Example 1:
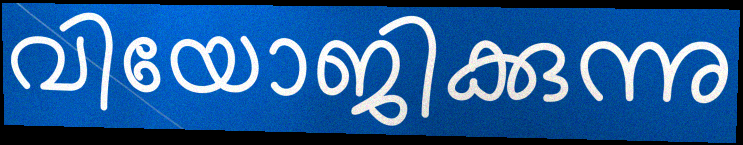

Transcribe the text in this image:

വിയോജിക്കുന്നു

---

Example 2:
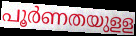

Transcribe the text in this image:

പൂർണതയുളള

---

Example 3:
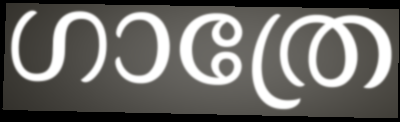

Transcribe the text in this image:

ഗാത്രേ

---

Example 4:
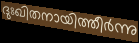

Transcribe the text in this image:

ദുഃഖിതനായിത്തീർന്നു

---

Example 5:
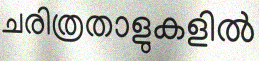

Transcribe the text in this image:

ചരിത്രതാളുകളിൽ